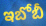
ఇబోబీ